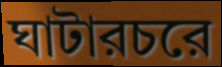
ঘাটারচরে